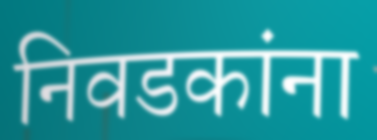
निवडकांना